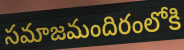
సమాజమందిరంలోకి